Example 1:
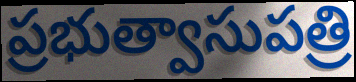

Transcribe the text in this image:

ప్రభుత్వాసుపత్రి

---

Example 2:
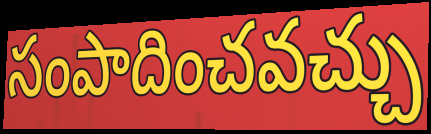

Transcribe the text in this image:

సంపాదించవచ్చు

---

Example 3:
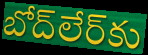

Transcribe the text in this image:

బోద్‌లేర్‌కు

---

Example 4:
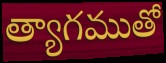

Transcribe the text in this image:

త్యాగముతో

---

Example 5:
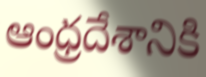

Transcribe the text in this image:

ఆంధ్రదేశానికి